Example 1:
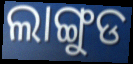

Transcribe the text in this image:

ଲାଙ୍ଗୁଡ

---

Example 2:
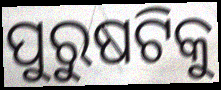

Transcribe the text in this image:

ପୁରୁଷଟିକୁ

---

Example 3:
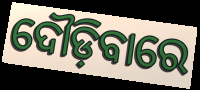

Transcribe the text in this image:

ଦୌଡ଼ିବାରେ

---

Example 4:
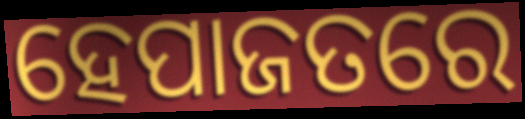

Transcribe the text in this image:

ହେପାଜତରେ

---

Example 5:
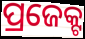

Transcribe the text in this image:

ପ୍ରଜେକ୍ଟ